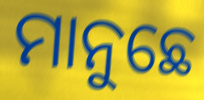
ମାନୁଛେ